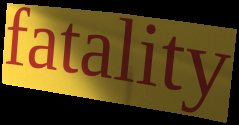
fatality